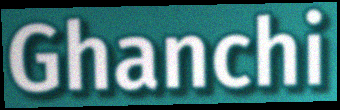
Ghanchi